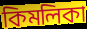
কিমলিকা